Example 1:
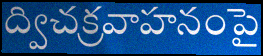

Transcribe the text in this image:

ద్విచక్రవాహనంపై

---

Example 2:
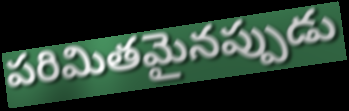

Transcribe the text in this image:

పరిమితమైనప్పుడు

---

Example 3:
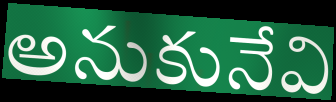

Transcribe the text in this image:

అనుకునేవి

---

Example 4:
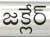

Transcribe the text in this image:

జక్లేర్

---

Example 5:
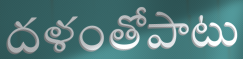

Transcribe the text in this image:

దళంతోపాటు